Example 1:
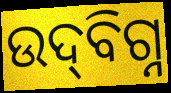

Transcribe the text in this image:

ଉଦ୍‌ବିଗ୍ନ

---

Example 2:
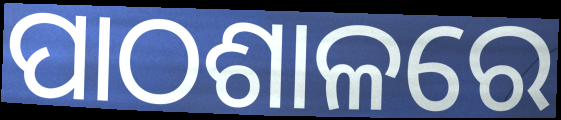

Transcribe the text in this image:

ପାଠଶାଳରେ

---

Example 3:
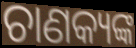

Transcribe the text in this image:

ଚାଣକ୍ୟଙ୍କ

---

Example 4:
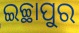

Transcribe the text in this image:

ଇଚ୍ଛାପୁର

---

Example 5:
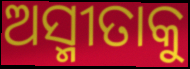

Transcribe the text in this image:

ଅସ୍ମୀତାକୁ